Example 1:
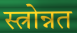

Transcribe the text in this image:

स्त्रोन्नत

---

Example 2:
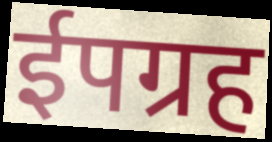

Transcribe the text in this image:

ईपग्रह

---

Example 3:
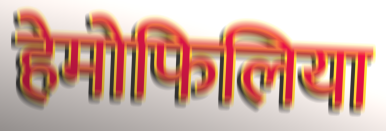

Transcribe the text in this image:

हेमोफिलिया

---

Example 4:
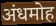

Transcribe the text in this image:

अंधमोह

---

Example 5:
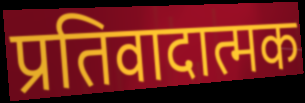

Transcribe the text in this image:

प्रतिवादात्मक